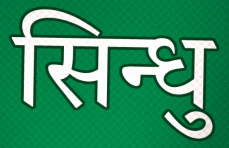
सिन्धु